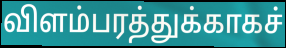
விளம்பரத்துக்காகச்